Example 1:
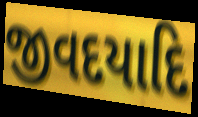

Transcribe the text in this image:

જીવદયાદિ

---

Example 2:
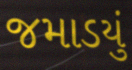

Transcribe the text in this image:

જમાડયું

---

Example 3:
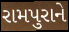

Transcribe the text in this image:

રામપુરાને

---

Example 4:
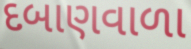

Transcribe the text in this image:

દબાણવાળા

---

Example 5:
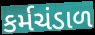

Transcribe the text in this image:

કર્મચંડાળ